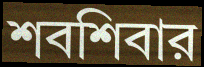
শবশিবার